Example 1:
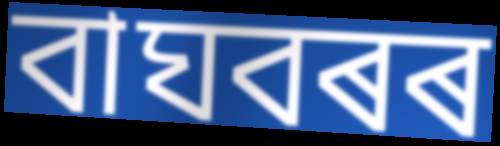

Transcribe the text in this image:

বাঘবৰৰ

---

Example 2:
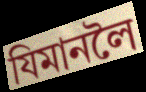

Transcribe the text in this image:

যিমানলৈ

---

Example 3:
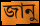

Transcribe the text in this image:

জানু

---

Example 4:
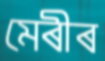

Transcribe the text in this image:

মেৰীৰ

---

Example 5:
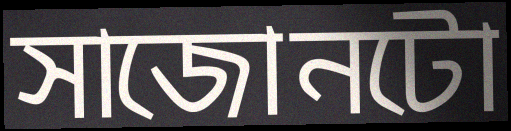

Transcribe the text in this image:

সাজোনটো